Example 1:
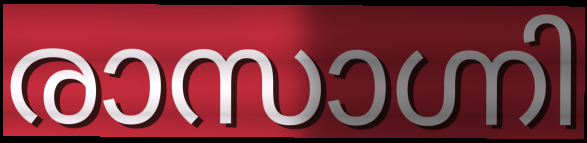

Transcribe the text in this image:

രാസാഗ്നി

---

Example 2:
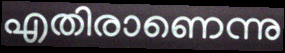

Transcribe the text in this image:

എതിരാണെന്നു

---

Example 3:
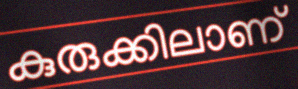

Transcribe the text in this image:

കുരുക്കിലാണ്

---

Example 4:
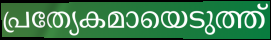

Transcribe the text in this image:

പ്രത്യേകമായെടുത്ത്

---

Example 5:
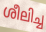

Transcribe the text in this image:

ശീലിച്ച